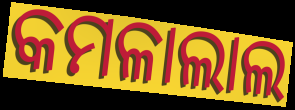
କମଳାଲାଲ